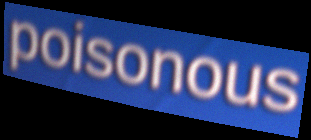
poisonous